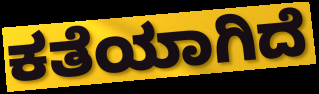
ಕತೆಯಾಗಿದೆ